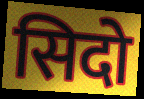
सिदो